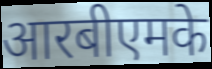
आरबीएमके